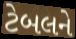
ટેબલને